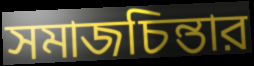
সমাজচিন্তার